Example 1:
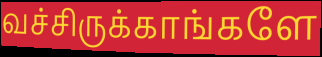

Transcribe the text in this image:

வச்சிருக்காங்களே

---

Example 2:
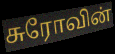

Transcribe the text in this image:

சுரோவின்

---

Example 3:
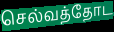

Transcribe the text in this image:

செல்வத்தோட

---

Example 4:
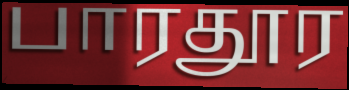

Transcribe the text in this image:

பாரதூர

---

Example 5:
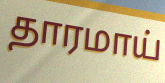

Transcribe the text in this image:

தாரமாய்